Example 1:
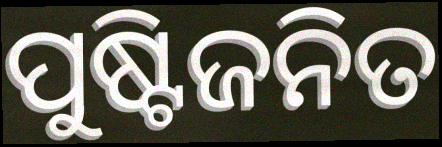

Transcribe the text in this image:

ପୁଷ୍ଟିଜନିତ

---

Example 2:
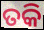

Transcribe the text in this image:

ତକି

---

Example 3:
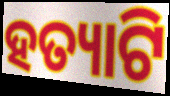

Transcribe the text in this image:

ହତ୍ୟାଟି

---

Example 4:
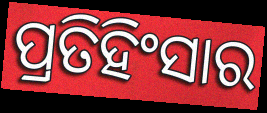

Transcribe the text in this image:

ପ୍ରତିହିଂସାର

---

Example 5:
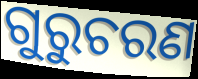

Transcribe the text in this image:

ଗୁରୁଚରଣ